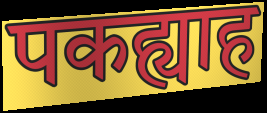
पकह्याह